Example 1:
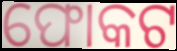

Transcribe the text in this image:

ଫୋକଟ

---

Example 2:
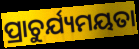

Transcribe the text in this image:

ପ୍ରାଚୁର୍ଯ୍ୟମୟତା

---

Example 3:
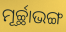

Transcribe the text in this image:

ମୂର୍ଚ୍ଛାଭଙ୍ଗ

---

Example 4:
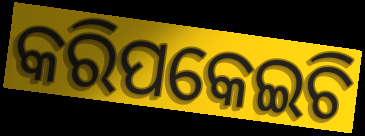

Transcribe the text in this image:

କରିପକେଇଚି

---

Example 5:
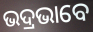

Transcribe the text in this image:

ଭଦ୍ରଭାବେ